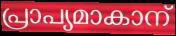
പ്രാപ്യമാകാന്